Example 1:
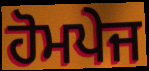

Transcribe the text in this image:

ਹੋਮਪੇਜ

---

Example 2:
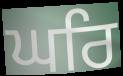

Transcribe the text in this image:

ਘਰਿ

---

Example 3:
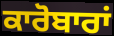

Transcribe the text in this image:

ਕਾਰੋਬਾਰਾਂ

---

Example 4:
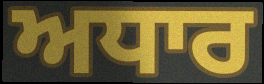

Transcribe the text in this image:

ਅਧਾਰ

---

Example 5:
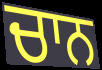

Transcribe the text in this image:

ਚਾਨ